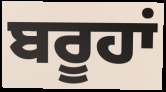
ਬਰੂਹਾਂ